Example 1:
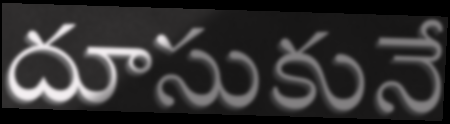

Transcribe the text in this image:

దూసుకునే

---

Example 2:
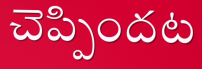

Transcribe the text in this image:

చెప్పిందట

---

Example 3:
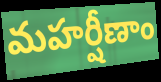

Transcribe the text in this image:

మహర్షీణాం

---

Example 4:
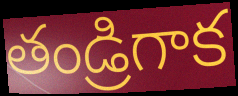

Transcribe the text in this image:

తండ్రిగాక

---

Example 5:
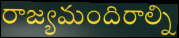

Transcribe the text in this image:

రాజ్యమందిరాల్ని